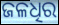
ଜଳଧିର